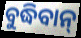
ବୁଦ୍ଧିବାନ୍